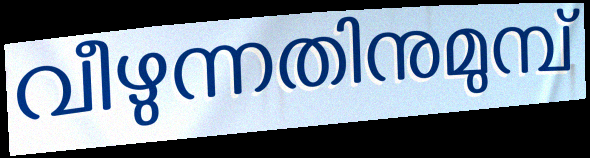
വീഴുന്നതിനുമുമ്പ്